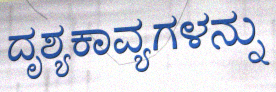
ದೃಶ್ಯಕಾವ್ಯಗಳನ್ನು